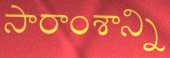
సారాంశాన్ని